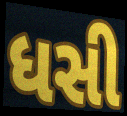
ધસી